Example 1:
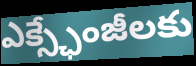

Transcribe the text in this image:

ఎక్స్ఛేంజీలకు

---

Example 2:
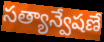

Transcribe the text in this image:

సత్యాన్వేషణే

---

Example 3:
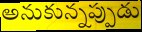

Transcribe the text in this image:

అనుకున్నప్పుడు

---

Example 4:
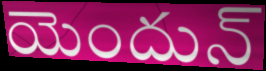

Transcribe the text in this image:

యెందున్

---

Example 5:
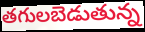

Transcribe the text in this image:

తగులబెడుతున్న